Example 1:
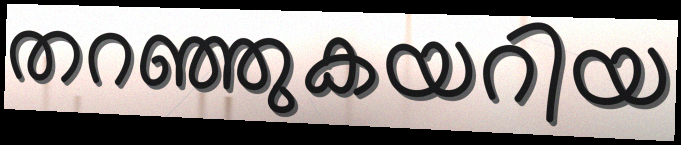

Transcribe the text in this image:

തറഞ്ഞുകയറിയ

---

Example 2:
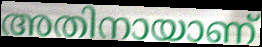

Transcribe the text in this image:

അതിനായാണ്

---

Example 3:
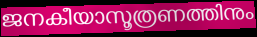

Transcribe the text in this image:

ജനകീയാസൂത്രണത്തിനും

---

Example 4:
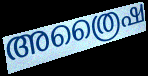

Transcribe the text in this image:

അത്രൈഷ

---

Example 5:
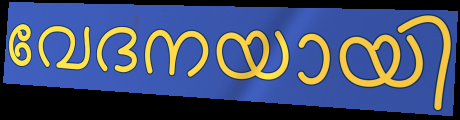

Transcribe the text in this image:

വേദനയായി